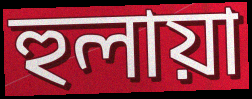
হুলায়া